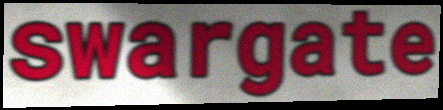
swargate